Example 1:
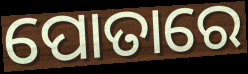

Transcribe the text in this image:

ପୋତାରେ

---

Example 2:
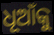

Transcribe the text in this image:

ଧୂଆଁକୁ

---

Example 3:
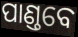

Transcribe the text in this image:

ପାଣ୍ଡବେ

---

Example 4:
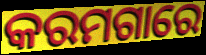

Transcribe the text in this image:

କରମଗାରେ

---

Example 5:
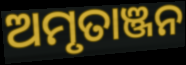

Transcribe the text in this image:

ଅମୃତାଞ୍ଜନ